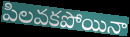
పిలవకపోయినా